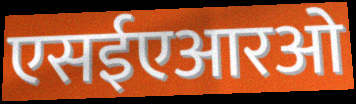
एसईएआरओ